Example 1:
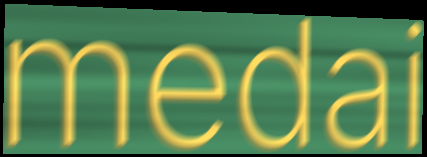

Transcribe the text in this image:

medai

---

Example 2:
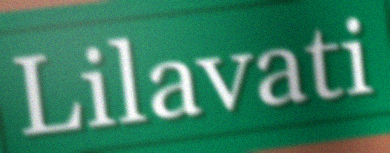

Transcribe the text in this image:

Lilavati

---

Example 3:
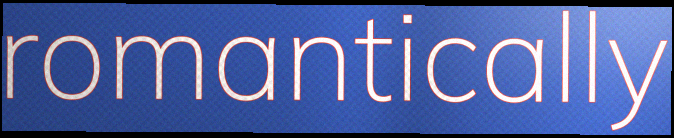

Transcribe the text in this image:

romantically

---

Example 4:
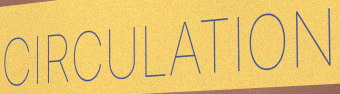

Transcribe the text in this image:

CIRCULATION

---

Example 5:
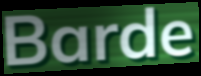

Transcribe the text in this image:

Barde